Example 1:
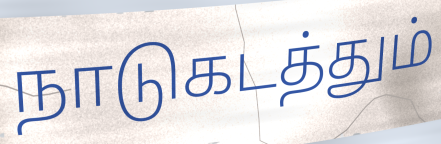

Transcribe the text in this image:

நாடுகடத்தும்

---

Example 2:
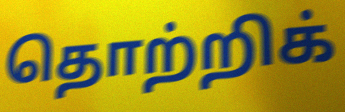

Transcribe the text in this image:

தொற்றிக்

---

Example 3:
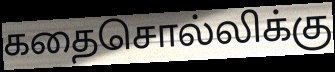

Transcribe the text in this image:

கதைசொல்லிக்கு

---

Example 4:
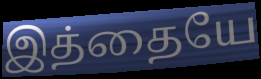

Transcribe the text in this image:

இத்தையே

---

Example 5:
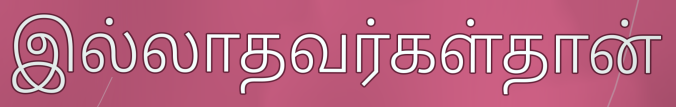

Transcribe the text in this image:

இல்லாதவர்கள்தான்